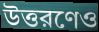
উত্তরণেও